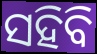
ସହିବି